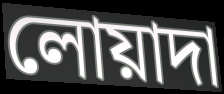
লোয়াদা